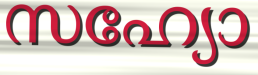
സഹ്യോ